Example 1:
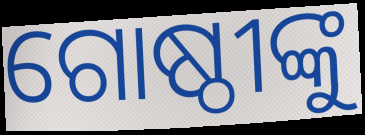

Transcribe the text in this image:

ଗୋଷ୍ଠୀଙ୍କୁ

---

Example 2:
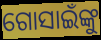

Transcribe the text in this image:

ଗୋସାଇଁଙ୍କୁ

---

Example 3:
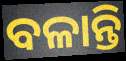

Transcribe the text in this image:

ବଳାନ୍ତି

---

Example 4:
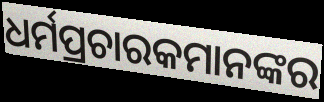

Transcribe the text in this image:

ଧର୍ମପ୍ରଚାରକମାନଙ୍କର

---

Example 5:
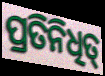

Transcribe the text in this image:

ପ୍ରତିନିଧିତ୍